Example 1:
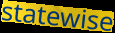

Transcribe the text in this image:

statewise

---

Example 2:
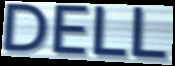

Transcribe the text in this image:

DELL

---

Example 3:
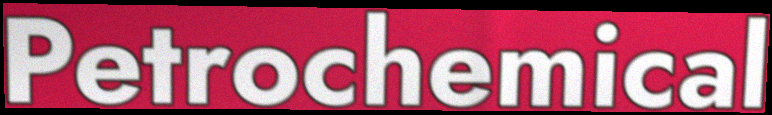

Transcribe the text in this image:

Petrochemical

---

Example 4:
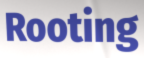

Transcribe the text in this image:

Rooting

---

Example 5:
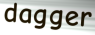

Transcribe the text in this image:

dagger